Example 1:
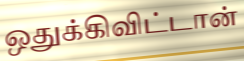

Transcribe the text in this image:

ஒதுக்கிவிட்டான்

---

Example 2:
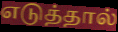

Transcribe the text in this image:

எடுத்தால்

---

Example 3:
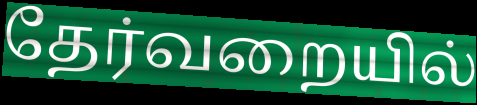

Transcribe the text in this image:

தேர்வறையில்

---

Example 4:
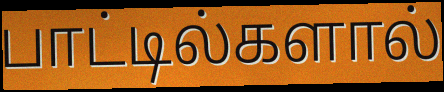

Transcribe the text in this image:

பாட்டில்களால்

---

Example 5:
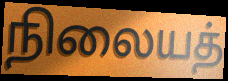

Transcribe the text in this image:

நிலையத்